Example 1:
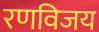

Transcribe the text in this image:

रणविजय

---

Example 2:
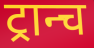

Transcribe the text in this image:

ट्रान्च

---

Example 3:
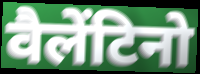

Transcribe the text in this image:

वैलेंटिनो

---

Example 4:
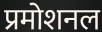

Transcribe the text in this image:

प्रमोशनल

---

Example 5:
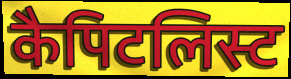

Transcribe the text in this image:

कैपिटलिस्ट